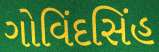
ગોવિંદસિંહ